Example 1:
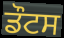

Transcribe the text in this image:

ਡੌਟਸ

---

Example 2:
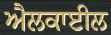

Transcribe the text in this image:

ਐਲਕਾਈਲ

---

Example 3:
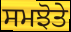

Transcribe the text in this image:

ਸਮਝੋਤੇ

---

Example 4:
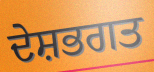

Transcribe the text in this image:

ਦੇਸ਼ਭਗਤ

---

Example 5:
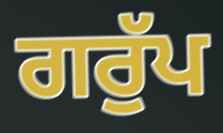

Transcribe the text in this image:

ਗਰੁੱਪ